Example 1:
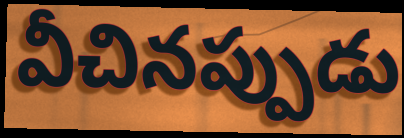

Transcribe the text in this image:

వీచినప్పుడు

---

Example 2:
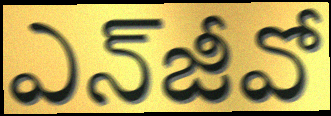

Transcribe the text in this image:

ఎన్‌జీవో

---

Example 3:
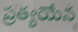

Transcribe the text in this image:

ప్రత్యయేన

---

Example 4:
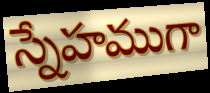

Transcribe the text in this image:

స్నేహముగా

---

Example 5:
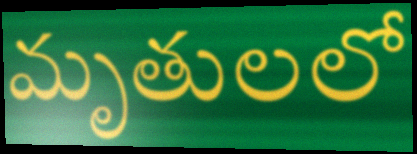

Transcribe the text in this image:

మృతులలో